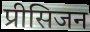
प्रीसिजन